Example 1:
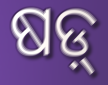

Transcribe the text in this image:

ଷଡ଼୍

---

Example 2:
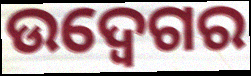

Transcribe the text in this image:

ଉଦ୍ବେଗର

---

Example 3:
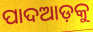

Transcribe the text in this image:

ପାଦଆଡ଼କୁ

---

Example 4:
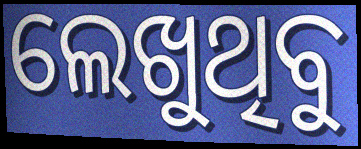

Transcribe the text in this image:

ଲେଖୁଥିବୁ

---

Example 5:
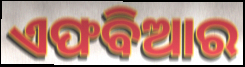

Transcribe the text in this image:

ଏଫବିଆର